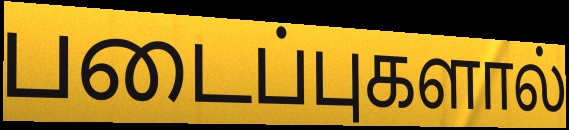
படைப்புகளால்